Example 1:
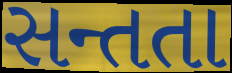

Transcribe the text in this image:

સન્તતા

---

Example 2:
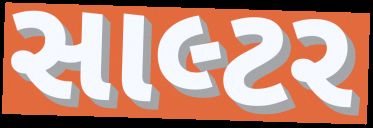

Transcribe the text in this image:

સાલ્ટર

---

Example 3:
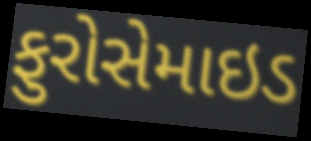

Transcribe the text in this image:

ફુરોસેમાઇડ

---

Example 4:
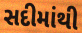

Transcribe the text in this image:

સદીમાંથી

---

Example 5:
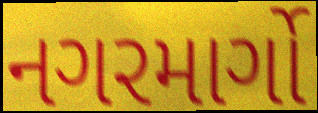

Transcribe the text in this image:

નગરમાર્ગો